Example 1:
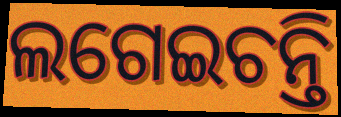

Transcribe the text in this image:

ଲଗେଇଚନ୍ତି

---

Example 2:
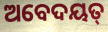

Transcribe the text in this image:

ଅବେଦୟତ୍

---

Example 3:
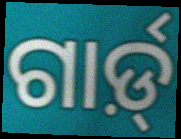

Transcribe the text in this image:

ଗାର୍ଡ଼୍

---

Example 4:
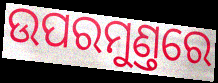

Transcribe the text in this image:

ଉପରମୁଣ୍ତରେ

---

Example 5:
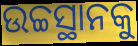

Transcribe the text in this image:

ଉଚ୍ଚସ୍ଥାନକୁ